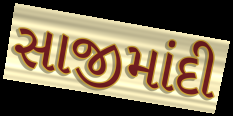
સાજીમાંદી